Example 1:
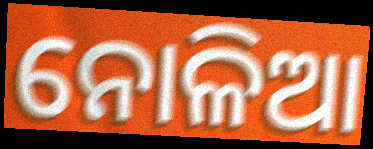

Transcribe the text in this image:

ନୋଳିଆ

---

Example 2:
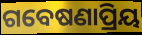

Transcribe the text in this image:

ଗବେଷଣାପ୍ରିୟ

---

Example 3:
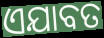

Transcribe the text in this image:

ଏଯାବତ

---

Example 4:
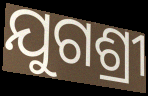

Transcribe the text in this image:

ଯୁଗଶ୍ରୀ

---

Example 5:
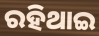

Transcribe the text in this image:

ରହିଥାଇ